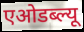
एओडब्ल्यू